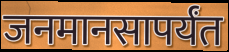
जनमानसापर्यंत